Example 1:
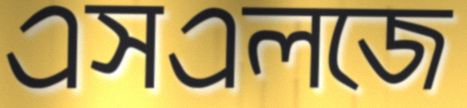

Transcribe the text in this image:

এসএলজে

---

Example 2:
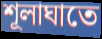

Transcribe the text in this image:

শূলাঘাতে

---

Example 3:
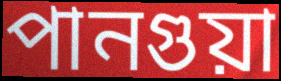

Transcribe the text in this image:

পানগুয়া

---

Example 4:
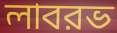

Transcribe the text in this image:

লাবরভ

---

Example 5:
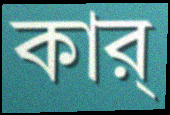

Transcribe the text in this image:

কার্